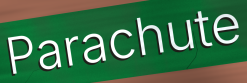
Parachute